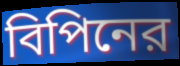
বিপিনের